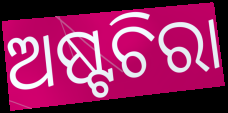
ଅଷ୍ଟଚିରା